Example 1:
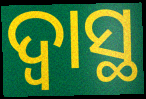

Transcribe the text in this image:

ଦ୍ୱାସ୍ଥ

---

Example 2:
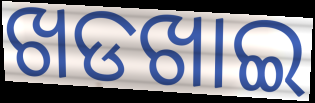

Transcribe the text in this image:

ଖଡଖାଇ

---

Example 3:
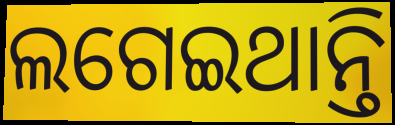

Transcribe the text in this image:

ଲଗେଇଥାନ୍ତି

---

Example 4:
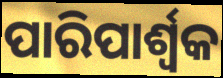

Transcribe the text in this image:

ପାରିପାର୍ଶ୍ଵକ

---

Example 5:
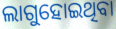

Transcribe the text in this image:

ଲାଗୁହୋଇଥିବା